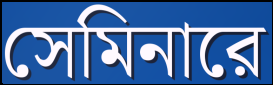
সেমিনারে